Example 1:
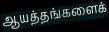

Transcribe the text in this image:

ஆயத்தங்களைக்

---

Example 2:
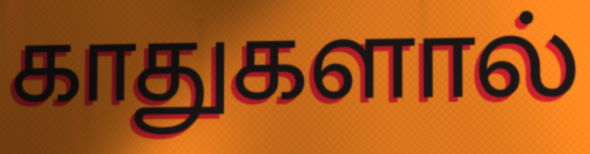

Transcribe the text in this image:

காதுகளால்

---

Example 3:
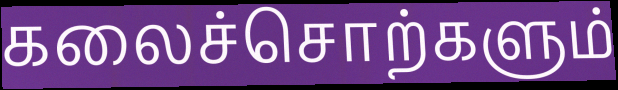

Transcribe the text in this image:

கலைச்சொற்களும்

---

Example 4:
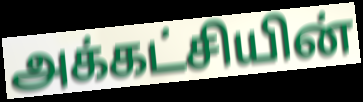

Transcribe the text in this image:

அக்கட்சியின்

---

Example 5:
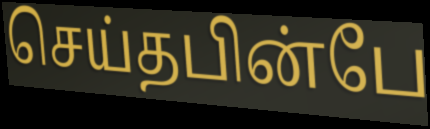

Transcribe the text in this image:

செய்தபின்பே